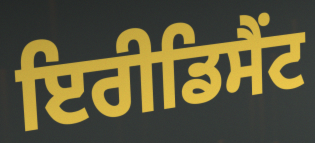
ਇਰੀਡਿਸੈਂਟ